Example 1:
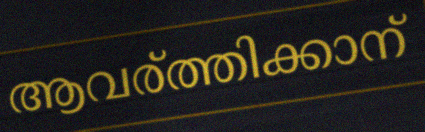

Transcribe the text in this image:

ആവര്ത്തിക്കാന്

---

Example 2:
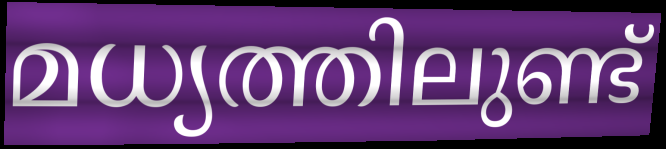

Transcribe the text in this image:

മധ്യത്തിലുണ്ട്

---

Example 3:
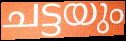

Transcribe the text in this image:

ചട്ടയും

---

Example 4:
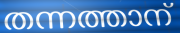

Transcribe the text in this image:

തന്നത്താന്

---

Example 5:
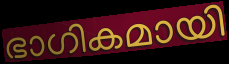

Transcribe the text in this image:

ഭാഗികമായി